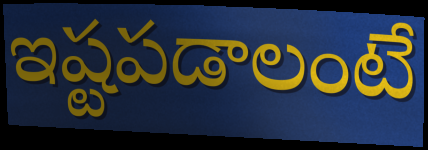
ఇష్టపడాలంటే